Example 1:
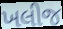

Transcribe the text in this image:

ખલીજ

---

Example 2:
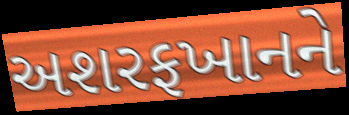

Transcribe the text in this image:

અશરફખાનને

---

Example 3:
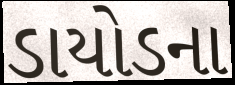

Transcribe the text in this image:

ડાયોડના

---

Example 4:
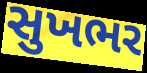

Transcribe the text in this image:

સુખભર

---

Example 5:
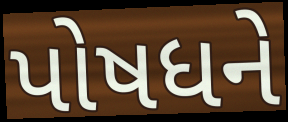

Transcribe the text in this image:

પોષધને